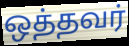
ஒத்தவர்